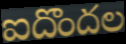
ఐదొందల